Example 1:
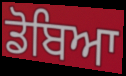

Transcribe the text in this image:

ਡੋਬਿਆ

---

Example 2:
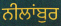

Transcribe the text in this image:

ਨੀਲਾਂਬੁਰ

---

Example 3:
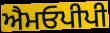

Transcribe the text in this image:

ਐਮਓਪੀਪੀ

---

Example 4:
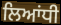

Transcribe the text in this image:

ਲਿਆਂਧੀ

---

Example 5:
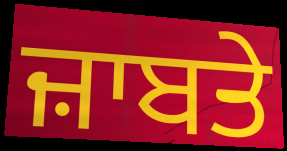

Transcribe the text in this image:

ਜ਼ਾਬਤੇ